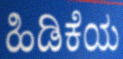
ಹಿಡಿಕೆಯ